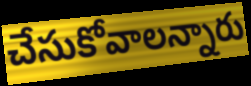
చేసుకోవాలన్నారు